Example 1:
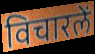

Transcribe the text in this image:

विचारलें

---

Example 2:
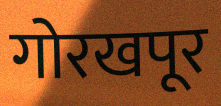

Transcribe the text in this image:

गोरखपूर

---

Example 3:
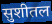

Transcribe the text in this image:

सुशीतल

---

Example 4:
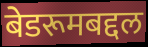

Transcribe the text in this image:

बेडरूमबद्दल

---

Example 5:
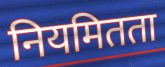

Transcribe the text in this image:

नियमितता